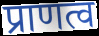
प्राणत्व